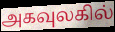
அகவுலகில்